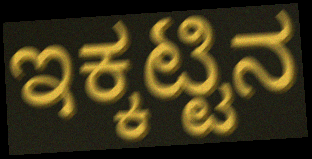
ಇಕ್ಕಟ್ಟಿನ